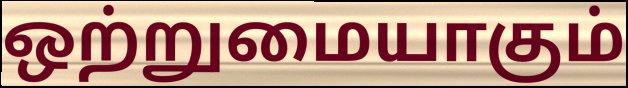
ஒற்றுமையாகும்